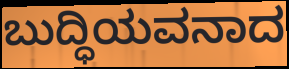
ಬುದ್ಧಿಯವನಾದ